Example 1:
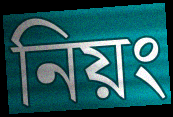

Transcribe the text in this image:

নিয়ং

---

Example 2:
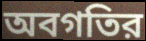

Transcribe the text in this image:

অবগতির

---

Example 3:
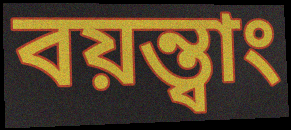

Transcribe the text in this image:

বয়ন্ত্বাং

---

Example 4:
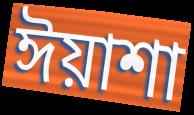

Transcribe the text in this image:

ঈয়াশা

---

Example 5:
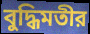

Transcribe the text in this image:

বুদ্ধিমতীর